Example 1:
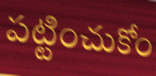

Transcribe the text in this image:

పట్టించుకోం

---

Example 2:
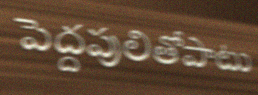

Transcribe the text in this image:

పెద్దపులితోపాటు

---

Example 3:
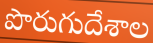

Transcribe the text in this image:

పొరుగుదేశాల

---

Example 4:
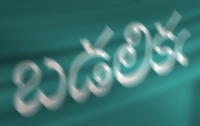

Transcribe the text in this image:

బడలికఁ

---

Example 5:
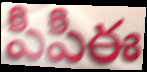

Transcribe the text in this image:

పీపీఈ